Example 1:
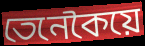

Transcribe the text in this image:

তেনেকৈয়ে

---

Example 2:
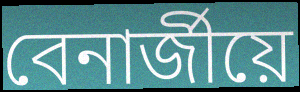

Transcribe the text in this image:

বেনাৰ্জীয়ে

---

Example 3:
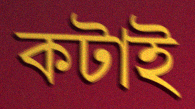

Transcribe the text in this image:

কটাই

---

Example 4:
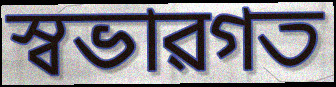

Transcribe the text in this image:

স্বভাৱগত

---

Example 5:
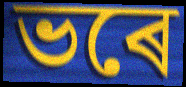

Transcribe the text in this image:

ভৰে